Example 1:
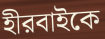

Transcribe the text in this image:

হীরবাইকে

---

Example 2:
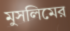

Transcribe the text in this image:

মুসলিমের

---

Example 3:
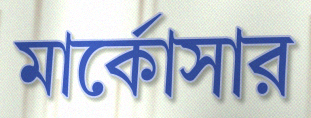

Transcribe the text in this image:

মার্কোসার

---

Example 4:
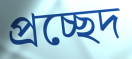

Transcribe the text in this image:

প্রচ্ছেদ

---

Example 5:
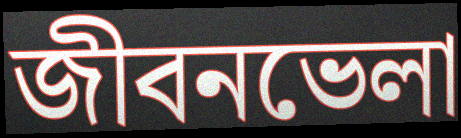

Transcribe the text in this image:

জীবনভেলা